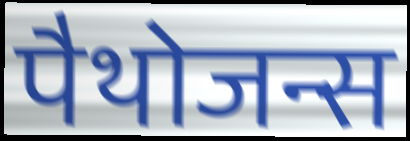
पैथोजन्स